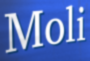
Moli